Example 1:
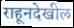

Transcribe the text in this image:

राहूनदेखील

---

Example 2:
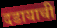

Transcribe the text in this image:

दडायाची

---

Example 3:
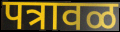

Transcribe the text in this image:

पत्रावळ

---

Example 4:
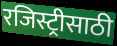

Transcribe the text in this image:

रजिस्ट्रीसाठी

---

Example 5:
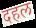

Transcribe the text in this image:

दहल